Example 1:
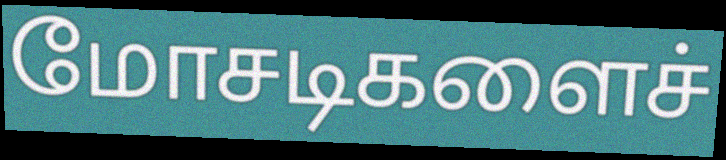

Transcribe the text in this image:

மோசடிகளைச்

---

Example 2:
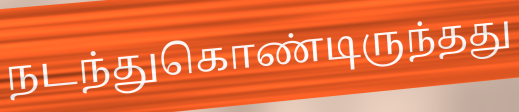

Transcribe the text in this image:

நடந்துகொண்டிருந்தது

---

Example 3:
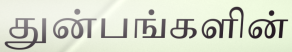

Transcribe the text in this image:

துன்பங்களின்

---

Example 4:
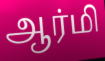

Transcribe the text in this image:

ஆர்மி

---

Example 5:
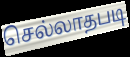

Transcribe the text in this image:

செல்லாதபடி